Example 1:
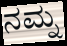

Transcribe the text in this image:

ನಮ್ನ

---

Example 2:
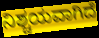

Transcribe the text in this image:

ನಿಶ್ಚಯವಾಗಿದೆ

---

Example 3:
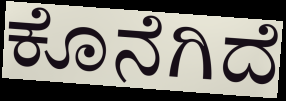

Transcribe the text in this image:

ಕೊನೆಗಿದೆ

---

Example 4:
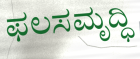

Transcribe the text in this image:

ಫಲಸಮೃದ್ಧಿ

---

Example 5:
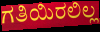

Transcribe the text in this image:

ಗತಿಯಿರಲಿಲ್ಲ